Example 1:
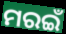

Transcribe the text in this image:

ମରଇଁ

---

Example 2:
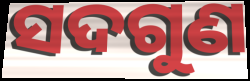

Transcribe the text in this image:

ସଦଗୁଣ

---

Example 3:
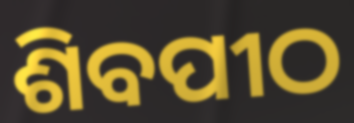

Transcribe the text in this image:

ଶିବପୀଠ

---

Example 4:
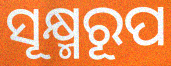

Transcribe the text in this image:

ସୂକ୍ଷ୍ମରୂପ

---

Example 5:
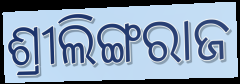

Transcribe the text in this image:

ଶ୍ରୀଲିଙ୍ଗରାଜ